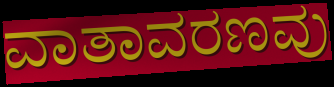
ವಾತಾವರಣವು